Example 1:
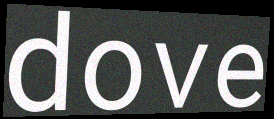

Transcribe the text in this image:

dove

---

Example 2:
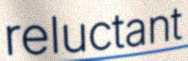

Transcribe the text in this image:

reluctant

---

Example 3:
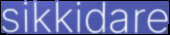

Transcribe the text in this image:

sikkidare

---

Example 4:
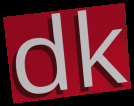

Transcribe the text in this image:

dk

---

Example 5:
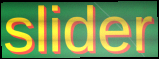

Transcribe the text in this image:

slider